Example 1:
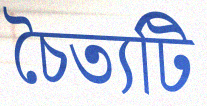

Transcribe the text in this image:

চৈত্যটি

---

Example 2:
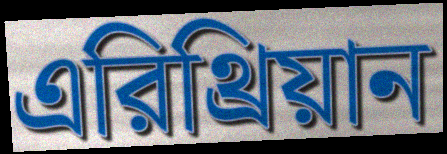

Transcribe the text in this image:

এরিথ্রিয়ান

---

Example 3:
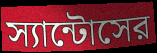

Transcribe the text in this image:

স্যান্টোসের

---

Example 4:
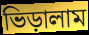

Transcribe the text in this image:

ভিড়ালাম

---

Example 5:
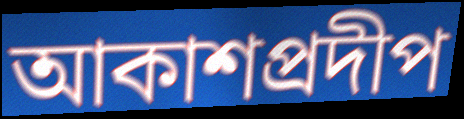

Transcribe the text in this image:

আকাশপ্রদীপ